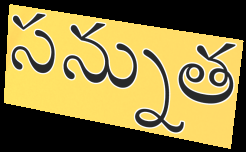
సన్నుత